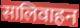
सालिवाहन